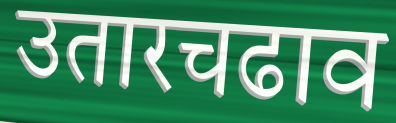
उतारचढाव